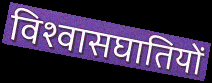
विश्वासघातियों